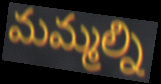
మమ్మల్ని